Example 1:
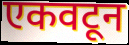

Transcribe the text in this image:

एकवटून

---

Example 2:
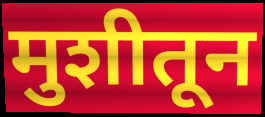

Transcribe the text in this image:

मुशीतून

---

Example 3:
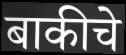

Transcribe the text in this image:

बाकीचे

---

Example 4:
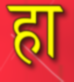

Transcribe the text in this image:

हा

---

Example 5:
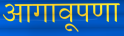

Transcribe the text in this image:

आगावूपणा